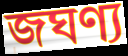
জঘণ্য